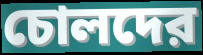
চোলদের